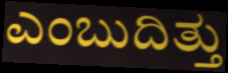
ಎಂಬುದಿತ್ತು